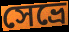
সেভ্রে